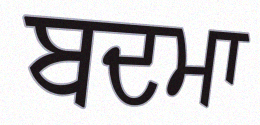
ਬਦਮਾ